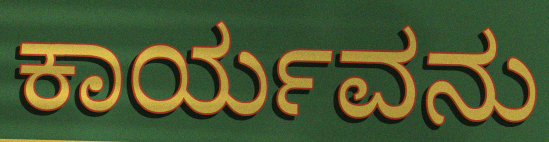
ಕಾರ್ಯವನು